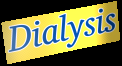
Dialysis